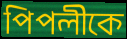
পিপলীকে